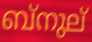
ബ്നുല്